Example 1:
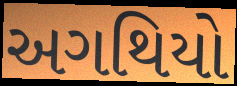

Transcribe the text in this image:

અગથિયો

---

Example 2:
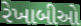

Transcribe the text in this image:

રેખાબીઓ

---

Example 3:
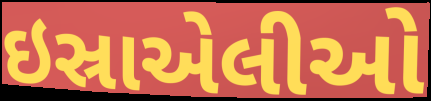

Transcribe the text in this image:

ઇસ્રાએલીઓ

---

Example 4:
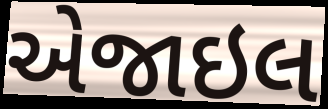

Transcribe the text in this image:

એજાઇલ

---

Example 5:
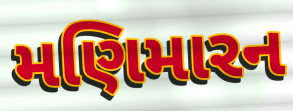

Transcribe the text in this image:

મણિમારન